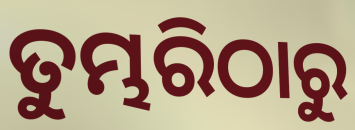
ତୁମ୍ଭରିଠାରୁ